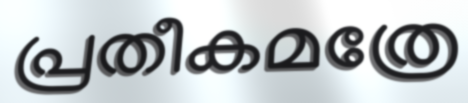
പ്രതീകമത്രേ